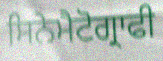
ਸਿਨੇਮੈਟੋਗ੍ਰਾਫੀ